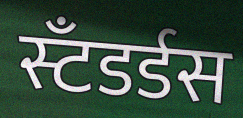
स्टँडर्डस